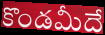
కొండమీదే